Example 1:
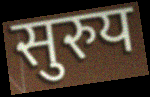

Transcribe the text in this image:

सुरुय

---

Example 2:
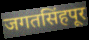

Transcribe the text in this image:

जगतसिंहपूर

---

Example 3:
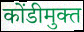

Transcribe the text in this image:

कोंडीमुक्त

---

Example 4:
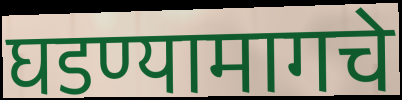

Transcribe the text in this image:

घडण्यामागचे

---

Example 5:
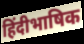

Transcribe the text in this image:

हिंदीभाषिक